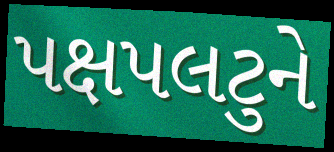
પક્ષપલટુને